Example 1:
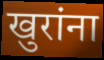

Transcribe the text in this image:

खुरांना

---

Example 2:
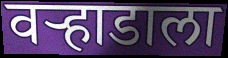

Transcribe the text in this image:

वऱ्हाडाला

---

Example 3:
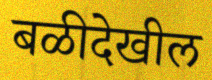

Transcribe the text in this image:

बळीदेखील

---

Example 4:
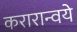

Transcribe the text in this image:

करारान्वये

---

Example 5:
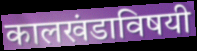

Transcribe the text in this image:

कालखंडाविषयी